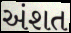
અંશત